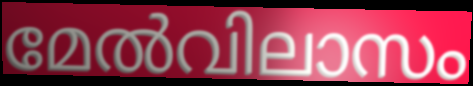
മേൽവിലാസം